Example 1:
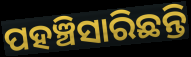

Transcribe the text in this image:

ପହଞ୍ଚିସାରିଛନ୍ତି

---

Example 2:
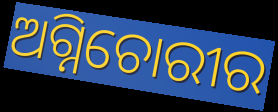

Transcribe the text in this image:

ଅଗ୍ନିଚୋରୀର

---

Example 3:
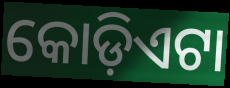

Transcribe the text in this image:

କୋଡ଼ିଏଟା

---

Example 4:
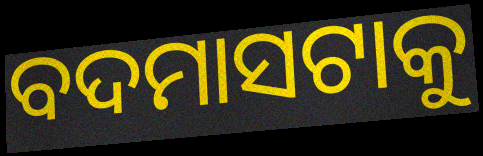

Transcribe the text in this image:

ବଦମାସଟାକୁ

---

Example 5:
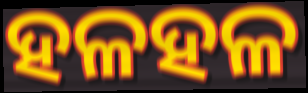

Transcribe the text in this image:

ହଳହଳ